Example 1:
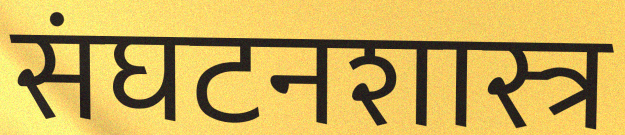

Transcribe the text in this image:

संघटनशास्त्र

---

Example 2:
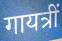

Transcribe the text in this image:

गायत्रीं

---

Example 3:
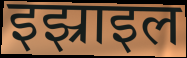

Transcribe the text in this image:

इझ्राइल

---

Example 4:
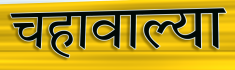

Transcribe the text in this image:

चहावाल्या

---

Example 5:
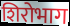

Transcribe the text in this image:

शिरोभाग